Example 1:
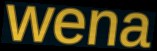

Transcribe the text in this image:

wena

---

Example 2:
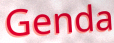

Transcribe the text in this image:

Genda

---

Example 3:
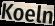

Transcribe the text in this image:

Koeln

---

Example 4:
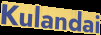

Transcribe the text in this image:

Kulandai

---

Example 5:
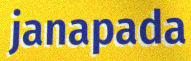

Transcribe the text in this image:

janapada